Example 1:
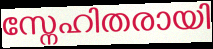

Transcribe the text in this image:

സ്നേഹിതരായി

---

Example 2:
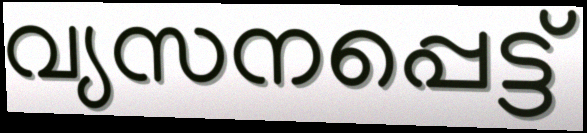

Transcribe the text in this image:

വ്യസനപ്പെട്ട്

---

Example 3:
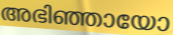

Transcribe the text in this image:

അഭിഞ്ഞായോ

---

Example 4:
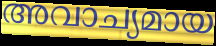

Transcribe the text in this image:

അവാച്യമായ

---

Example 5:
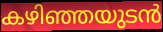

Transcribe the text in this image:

കഴിഞ്ഞയുടൻ